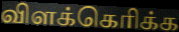
விளக்கெரிக்க